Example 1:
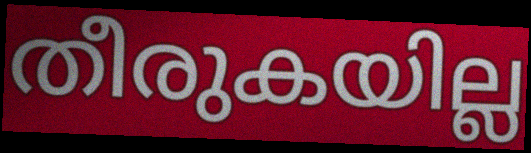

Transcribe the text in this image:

തീരുകയില്ല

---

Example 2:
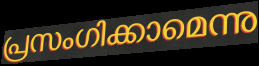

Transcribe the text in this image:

പ്രസംഗിക്കാമെന്നു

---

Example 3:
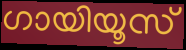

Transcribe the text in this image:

ഗായിയൂസ്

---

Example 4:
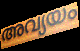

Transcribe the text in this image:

അവ്യയം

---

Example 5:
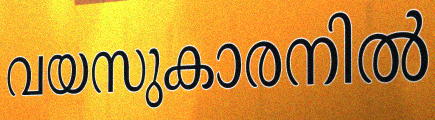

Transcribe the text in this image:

വയസുകാരനിൽ